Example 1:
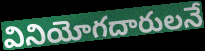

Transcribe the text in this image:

వినియోగదారులనే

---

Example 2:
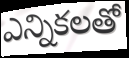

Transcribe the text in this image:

ఎన్నికలతో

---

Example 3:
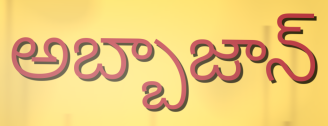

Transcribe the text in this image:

అబ్బాజాన్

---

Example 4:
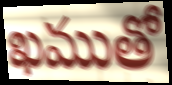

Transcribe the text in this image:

ఖముతో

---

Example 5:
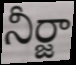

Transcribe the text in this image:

నీర్జా